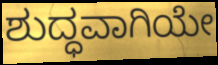
ಶುದ್ಧವಾಗಿಯೇ